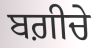
ਬਗ਼ੀਚੇ